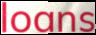
loans